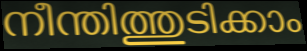
നീന്തിത്തുടിക്കാം